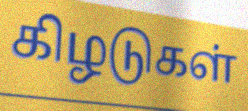
கிழடுகள்